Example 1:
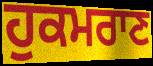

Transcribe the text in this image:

ਹੁਕਮਰਾਣ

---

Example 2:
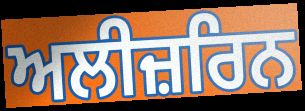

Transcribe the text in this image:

ਅਲੀਜ਼ਰਿਨ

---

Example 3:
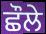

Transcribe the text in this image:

ਛੌਲੇ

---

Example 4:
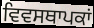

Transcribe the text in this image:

ਵਿਵਸਥਾਪਕਾਂ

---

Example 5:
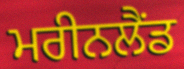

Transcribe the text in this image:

ਮਰੀਨਲੈਂਡ